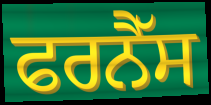
ਫਰਨੈੱਸ